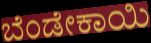
ಬೆಂಡೇಕಾಯಿ